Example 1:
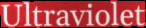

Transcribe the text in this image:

Ultraviolet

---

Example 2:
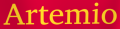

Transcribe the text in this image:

Artemio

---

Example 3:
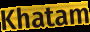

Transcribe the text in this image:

Khatam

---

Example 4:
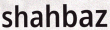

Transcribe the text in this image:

shahbaz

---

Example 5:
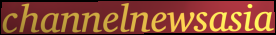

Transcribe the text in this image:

channelnewsasia